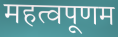
महत्वपूणम